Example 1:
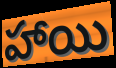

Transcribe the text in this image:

హాయి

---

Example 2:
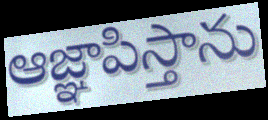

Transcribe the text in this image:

ఆజ్ఞాపిస్తాను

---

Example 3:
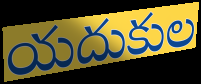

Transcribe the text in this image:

యదుకుల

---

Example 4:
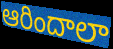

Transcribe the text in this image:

ఆరిందాలా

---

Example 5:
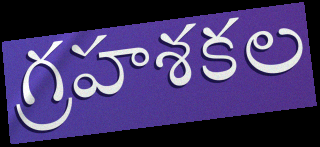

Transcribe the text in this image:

గ్రహశకల